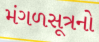
મંગળસૂત્રનો